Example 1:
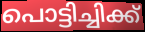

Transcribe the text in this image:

പൊട്ടിച്ചിക്ക്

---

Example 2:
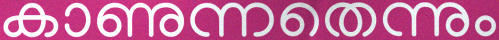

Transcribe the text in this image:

കാണുന്നതെന്നും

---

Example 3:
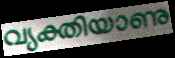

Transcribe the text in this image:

വ്യക്തിയാണു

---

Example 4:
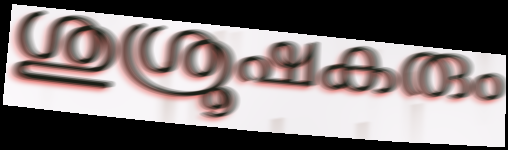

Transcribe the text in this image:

ശുശ്രൂഷകരും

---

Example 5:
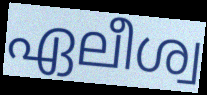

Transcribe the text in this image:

ഏലീശ്വ